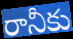
రానీకు